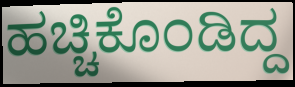
ಹಚ್ಚಿಕೊಂಡಿದ್ದ